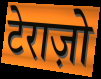
टेराज़ो